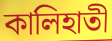
কালিহাতী